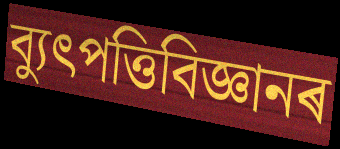
ব্যুৎপত্তিবিজ্ঞানৰ